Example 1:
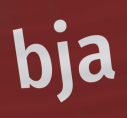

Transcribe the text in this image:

bja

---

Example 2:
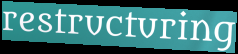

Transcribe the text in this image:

restructuring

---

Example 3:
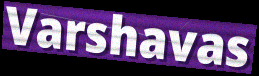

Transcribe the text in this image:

Varshavas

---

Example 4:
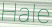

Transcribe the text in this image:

Hale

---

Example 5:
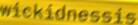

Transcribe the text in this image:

wickidnessis